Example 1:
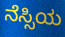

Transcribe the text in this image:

ನೆಸ್ಸಿಯ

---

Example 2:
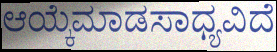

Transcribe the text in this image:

ಆಯ್ಕೆಮಾಡಸಾಧ್ಯವಿದೆ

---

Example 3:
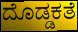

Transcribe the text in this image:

ದೊಡ್ಡಕತೆ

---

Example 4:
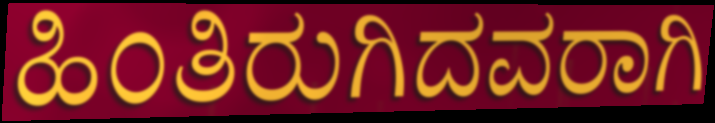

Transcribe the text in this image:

ಹಿಂತಿರುಗಿದವರಾಗಿ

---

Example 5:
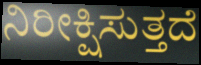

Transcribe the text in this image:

ನಿರೀಕ್ಷಿಸುತ್ತದೆ